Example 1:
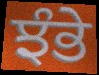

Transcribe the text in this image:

ਝੰਭੇ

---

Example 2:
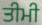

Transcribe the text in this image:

ਤੀਮੀ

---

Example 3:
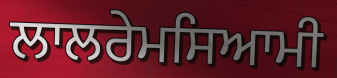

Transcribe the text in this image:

ਲਾਲਰੇਮਸਿਆਮੀ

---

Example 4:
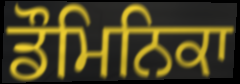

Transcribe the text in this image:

ਡੌਮਿਨਿਕਾ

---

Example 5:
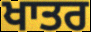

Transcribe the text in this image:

ਖਾਤਰ